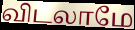
விடலாமே